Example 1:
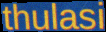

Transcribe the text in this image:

thulasi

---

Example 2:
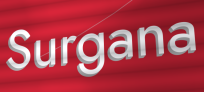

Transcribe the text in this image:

Surgana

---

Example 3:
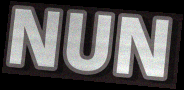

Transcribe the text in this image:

NUN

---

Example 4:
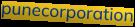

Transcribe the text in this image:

punecorporation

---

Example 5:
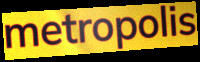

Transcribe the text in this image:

metropolis